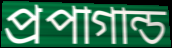
প্রপাগান্ড